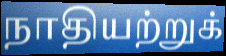
நாதியற்றுக்